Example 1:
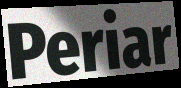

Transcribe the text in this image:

Periar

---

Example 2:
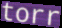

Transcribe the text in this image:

torr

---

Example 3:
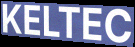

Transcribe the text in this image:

KELTEC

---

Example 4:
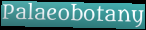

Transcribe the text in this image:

Palaeobotany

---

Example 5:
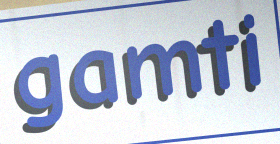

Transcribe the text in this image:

gamti